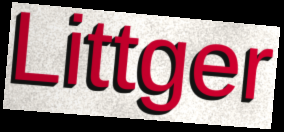
Littger